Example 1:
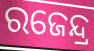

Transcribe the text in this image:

ରଜେନ୍ଦ୍ର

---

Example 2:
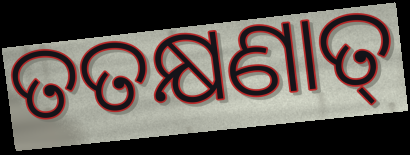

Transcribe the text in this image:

ତତକ୍ଷଣାତ୍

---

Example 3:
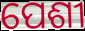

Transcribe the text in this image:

ପେଶୀ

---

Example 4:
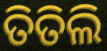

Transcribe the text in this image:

ତିତିଲି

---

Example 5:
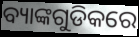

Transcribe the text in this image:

ବ୍ୟାଙ୍କଗୁଡିକରେ